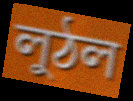
লুঠল